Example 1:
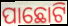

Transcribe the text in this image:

ପାଛୋଟି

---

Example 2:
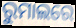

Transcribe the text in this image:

ରୁମାଲରେ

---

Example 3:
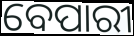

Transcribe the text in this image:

ବେପାରୀ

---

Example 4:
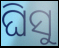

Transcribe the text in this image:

ଘିସୁ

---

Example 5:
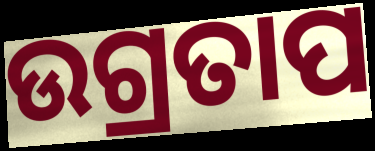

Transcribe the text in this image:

ଉଗ୍ରତାପ